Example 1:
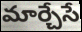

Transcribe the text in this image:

మార్చేసే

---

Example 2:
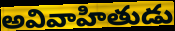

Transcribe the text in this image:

అవివాహితుడు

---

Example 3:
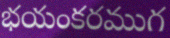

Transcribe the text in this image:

భయంకరముగ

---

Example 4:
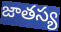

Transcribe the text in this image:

జాతస్య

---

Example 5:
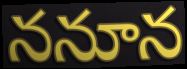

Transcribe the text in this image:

ననూన